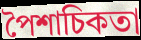
পৈশাচিকতা